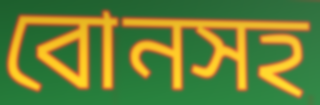
বোনসহ